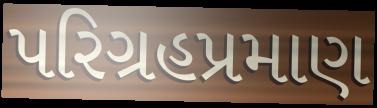
પરિગ્રહપ્રમાણ